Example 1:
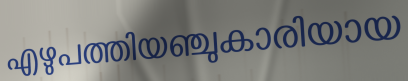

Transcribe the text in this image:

എഴുപത്തിയഞ്ചുകാരിയായ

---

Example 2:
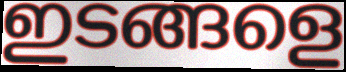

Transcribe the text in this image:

ഇടങ്ങളെ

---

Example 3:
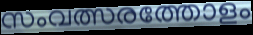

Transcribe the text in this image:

സംവത്സരത്തോളം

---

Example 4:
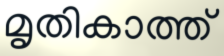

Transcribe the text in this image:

മൃതികാത്ത്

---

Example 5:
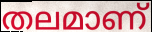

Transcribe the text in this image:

തലമാണ്